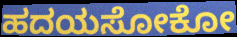
ಹದಯಸೋಕೋ